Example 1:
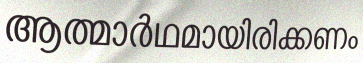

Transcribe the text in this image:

ആത്മാർഥമായിരിക്കണം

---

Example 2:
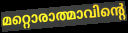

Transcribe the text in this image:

മറ്റൊരാത്മാവിന്റെ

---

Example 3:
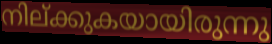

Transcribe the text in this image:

നില്ക്കുകയായിരുന്നു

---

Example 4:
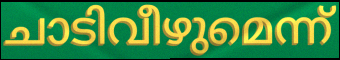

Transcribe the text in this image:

ചാടിവീഴുമെന്ന്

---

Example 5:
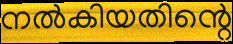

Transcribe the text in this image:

നൽകിയതിന്റെ